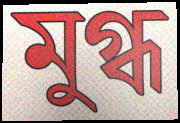
মুগ্ধ